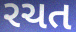
રચત